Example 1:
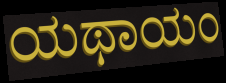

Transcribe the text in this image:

ಯಥಾಯಂ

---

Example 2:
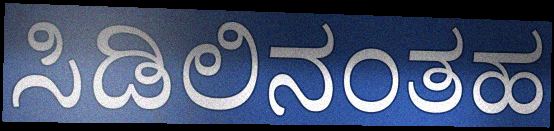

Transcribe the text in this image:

ಸಿಡಿಲಿನಂತಹ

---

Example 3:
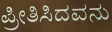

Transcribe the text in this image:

ಪ್ರೀತಿಸಿದವನು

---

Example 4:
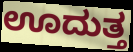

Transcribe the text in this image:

ಊದುತ್ತ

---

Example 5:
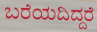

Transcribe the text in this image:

ಬರೆಯದಿದ್ದರೆ